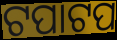
ଟପାଟପ